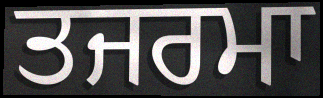
ਤਜਰਮਾ